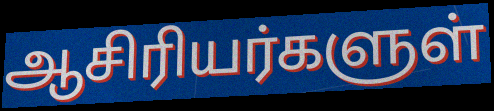
ஆசிரியர்களுள்